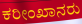
ಕರೀಂಖಾನರು